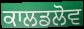
ਕਾਲਡਲੋਵ